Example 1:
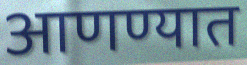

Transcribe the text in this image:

आणण्यात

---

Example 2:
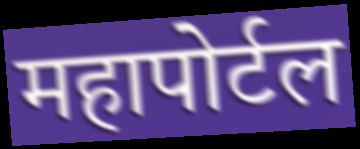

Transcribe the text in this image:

महापोर्टल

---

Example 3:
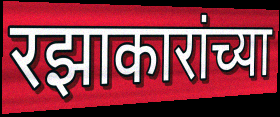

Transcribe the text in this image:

रझाकारांच्या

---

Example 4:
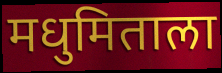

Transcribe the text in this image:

मधुमिताला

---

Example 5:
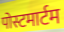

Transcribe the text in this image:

पोस्टमार्टम